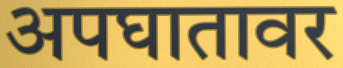
अपघातावर